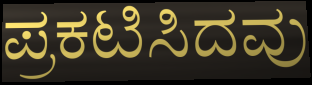
ಪ್ರಕಟಿಸಿದವು